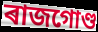
ৰাজগোণ্ড